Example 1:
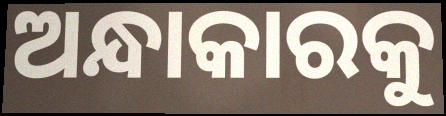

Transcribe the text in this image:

ଅନ୍ଧାକାରକୁ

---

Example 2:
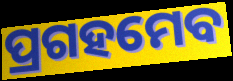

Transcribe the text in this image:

ପ୍ରଗହମେବ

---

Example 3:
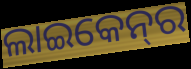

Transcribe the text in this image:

ଲାଇକେନ୍‌ର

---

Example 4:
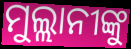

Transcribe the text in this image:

ମୁଲ୍ଲାନୀଙ୍କୁ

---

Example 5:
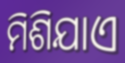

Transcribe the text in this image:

ମିଶିଯାଏ